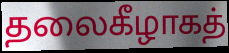
தலைகீழாகத்